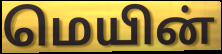
மெயின்